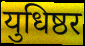
युधिष्ठर